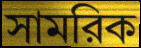
সামরিক